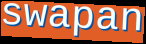
swapan